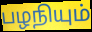
பழநியும்